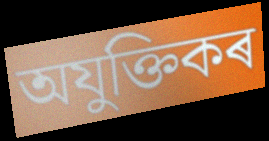
অযুক্তিকৰ